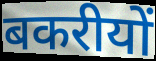
बकरीयों